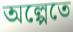
অল্পেতে